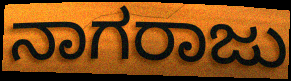
ನಾಗರಾಜು